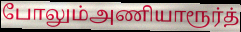
போலும்அணியாரூர்த்